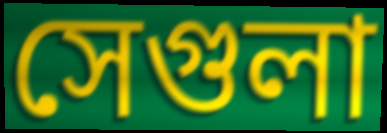
সেগুলা